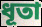
ধূতা